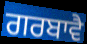
ਗਰਬਾਵੈ